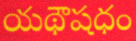
యథౌషధం